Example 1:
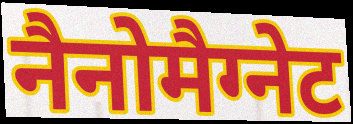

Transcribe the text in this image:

नैनोमैग्नेट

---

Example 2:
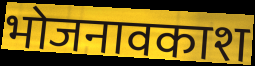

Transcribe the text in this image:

भोजनावकाश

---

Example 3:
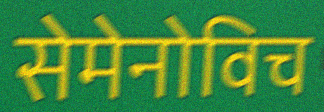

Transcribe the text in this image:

सेमेनोविच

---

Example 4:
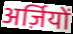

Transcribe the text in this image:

अर्ज़ियों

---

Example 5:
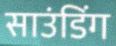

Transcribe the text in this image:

साउंडिंग